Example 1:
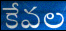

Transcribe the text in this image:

కేవల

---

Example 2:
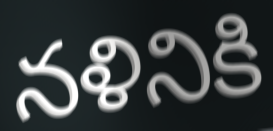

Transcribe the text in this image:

నళినికి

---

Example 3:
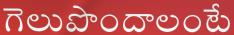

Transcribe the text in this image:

గెలుపొందాలంటే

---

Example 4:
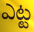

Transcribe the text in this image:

ఎట్ట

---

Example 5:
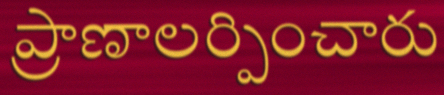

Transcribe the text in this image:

ప్రాణాలర్పించారు